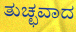
ತುಚ್ಛವಾದ